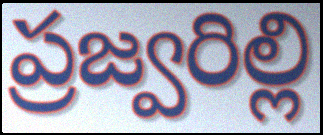
ప్రజ్వరిల్లి